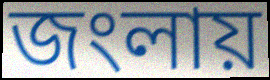
জংলায়